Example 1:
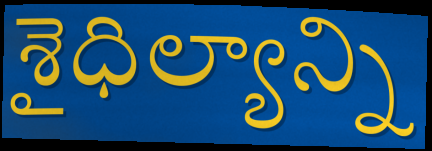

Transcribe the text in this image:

శైధిల్యాన్ని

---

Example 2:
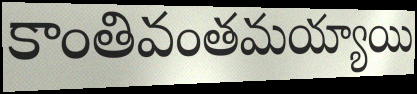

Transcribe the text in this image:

కాంతివంతమయ్యాయి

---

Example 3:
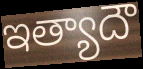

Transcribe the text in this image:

ఇత్యాదౌ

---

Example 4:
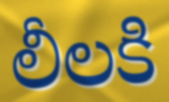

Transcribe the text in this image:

లీలకి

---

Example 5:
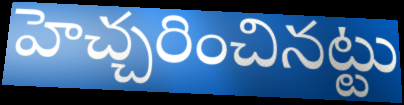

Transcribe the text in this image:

హెచ్చరించినట్టు